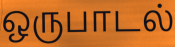
ஒருபாடல்